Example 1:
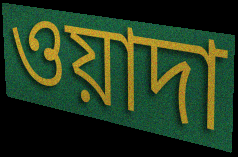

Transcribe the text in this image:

ওয়াদা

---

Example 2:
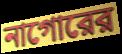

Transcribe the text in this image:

নাগোরের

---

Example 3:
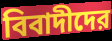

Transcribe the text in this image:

বিবাদীদের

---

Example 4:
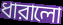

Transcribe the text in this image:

ধারালো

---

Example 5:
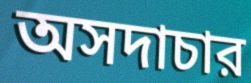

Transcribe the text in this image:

অসদাচার